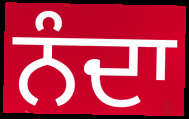
ਨੰਦਾ